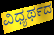
ವಿಧ್ಯರ್ಥದ